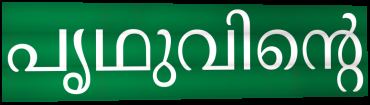
പൃഥുവിന്റെ